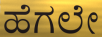
ಹೆಗಲೇ